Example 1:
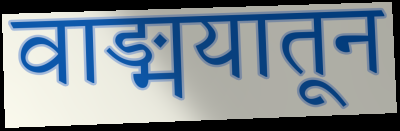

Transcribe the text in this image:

वाङ्मयातून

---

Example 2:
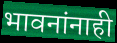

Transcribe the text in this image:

भावनांनाही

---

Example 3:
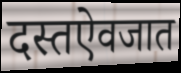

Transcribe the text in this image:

दस्तऐवजात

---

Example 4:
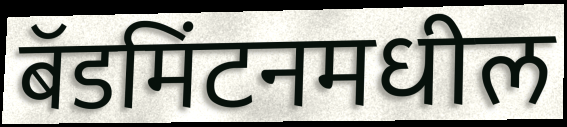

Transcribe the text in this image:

बॅडमिंटनमधील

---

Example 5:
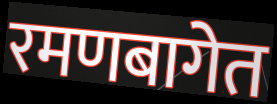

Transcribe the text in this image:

रमणबागेत